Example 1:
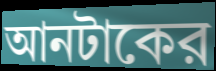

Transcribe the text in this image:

আনটাকের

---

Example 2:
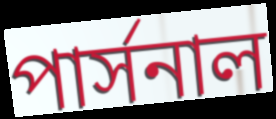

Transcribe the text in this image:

পার্সনাল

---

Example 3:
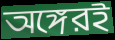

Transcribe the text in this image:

অঙ্গেরই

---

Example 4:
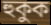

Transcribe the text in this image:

হুকুক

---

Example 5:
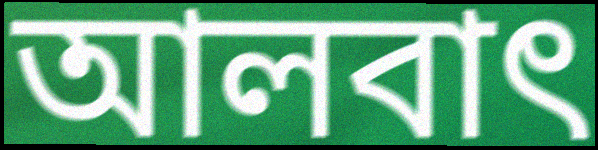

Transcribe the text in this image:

আলবাৎ